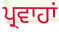
ਪ੍ਰਵਾਹਾਂ